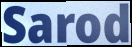
Sarod